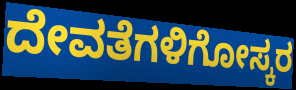
ದೇವತೆಗಳಿಗೋಸ್ಕರ